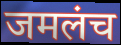
जमलंच